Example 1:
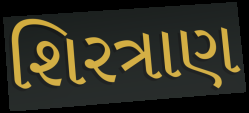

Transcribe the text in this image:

શિરત્રાણ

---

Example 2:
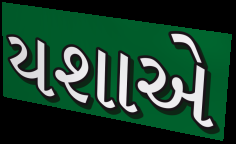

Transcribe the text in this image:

યશાએ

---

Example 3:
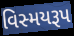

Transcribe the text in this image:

વિસ્મયરૂપ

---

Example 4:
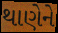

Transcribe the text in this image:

થાણેને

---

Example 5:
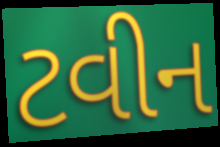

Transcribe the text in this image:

ટવીન